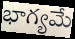
భాగ్యమే